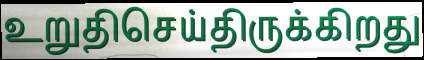
உறுதிசெய்திருக்கிறது